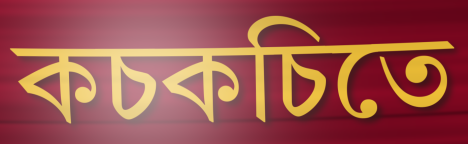
কচকচিতে